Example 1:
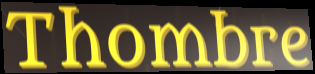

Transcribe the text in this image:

Thombre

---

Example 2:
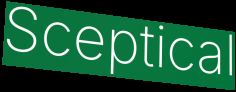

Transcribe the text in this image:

Sceptical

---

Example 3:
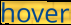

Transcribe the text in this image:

hover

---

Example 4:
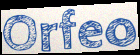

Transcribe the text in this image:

Orfeo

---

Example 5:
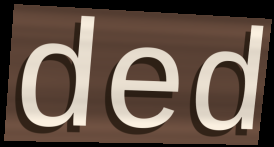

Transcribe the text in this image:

ded